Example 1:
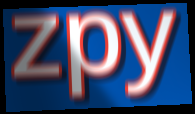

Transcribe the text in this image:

zpy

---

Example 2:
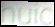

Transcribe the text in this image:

huic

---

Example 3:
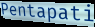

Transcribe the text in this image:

Pentapati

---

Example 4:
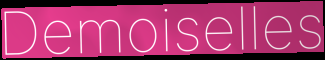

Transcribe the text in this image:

Demoiselles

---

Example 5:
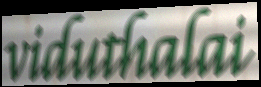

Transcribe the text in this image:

viduthalai